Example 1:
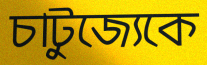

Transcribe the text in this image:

চাটুজ্যেকে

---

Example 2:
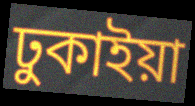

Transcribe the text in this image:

ঢুকাইয়া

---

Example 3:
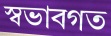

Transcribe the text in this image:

স্বভাবগত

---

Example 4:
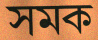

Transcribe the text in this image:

সমক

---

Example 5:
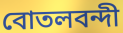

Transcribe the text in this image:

বোতলবন্দী